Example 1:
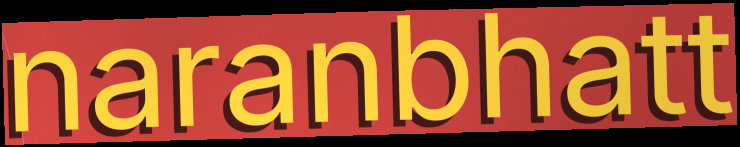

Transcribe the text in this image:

naranbhatt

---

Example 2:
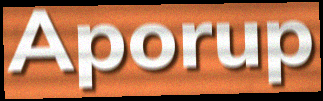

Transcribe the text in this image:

Aporup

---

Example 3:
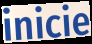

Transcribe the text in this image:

inicie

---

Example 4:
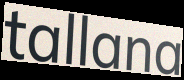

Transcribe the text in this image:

tallana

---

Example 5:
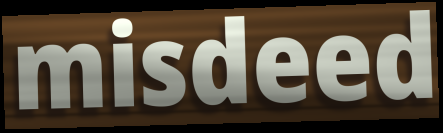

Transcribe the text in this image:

misdeed